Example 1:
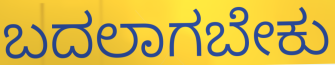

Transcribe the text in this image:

ಬದಲಾಗಬೇಕು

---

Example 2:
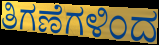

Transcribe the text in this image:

ತಿಗಣೆಗಳಿಂದ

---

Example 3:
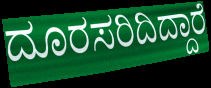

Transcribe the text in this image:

ದೂರಸರಿದಿದ್ದಾರೆ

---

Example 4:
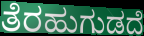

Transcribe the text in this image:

ತೆರಹುಗುಡದೆ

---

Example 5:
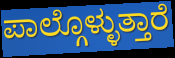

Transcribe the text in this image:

ಪಾಲ್ಗೊಳ್ಳುತ್ತಾರೆ